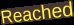
Reached